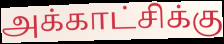
அக்காட்சிக்கு